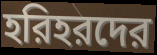
হরিহরদের